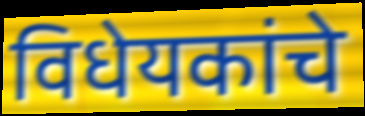
विधेयकांचे